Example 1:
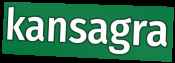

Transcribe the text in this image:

kansagra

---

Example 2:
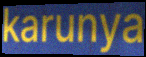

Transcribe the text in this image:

karunya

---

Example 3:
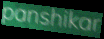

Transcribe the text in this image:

panshikar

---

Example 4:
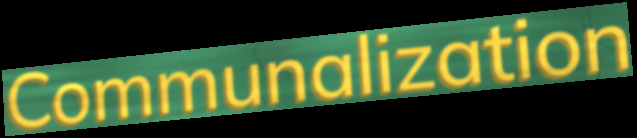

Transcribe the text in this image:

Communalization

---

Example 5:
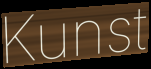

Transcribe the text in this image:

Kunst